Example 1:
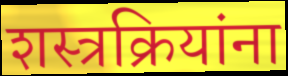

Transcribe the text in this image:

शस्त्रक्रियांना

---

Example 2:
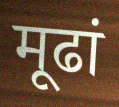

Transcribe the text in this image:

मूढां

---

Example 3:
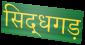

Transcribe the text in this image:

सिद्धगड़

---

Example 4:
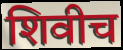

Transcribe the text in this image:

शिवीच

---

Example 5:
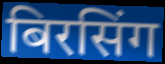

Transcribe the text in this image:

बिरसिंग